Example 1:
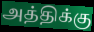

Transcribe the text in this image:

அத்திக்கு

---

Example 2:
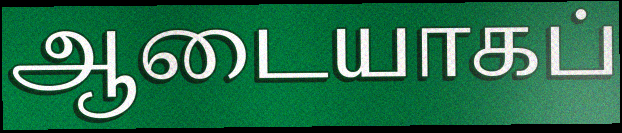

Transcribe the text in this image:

ஆடையாகப்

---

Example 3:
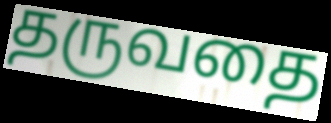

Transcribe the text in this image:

தருவதை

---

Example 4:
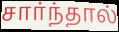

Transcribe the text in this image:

சார்ந்தால்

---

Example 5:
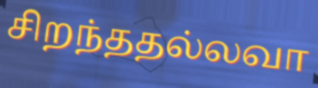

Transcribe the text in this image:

சிறந்ததல்லவா